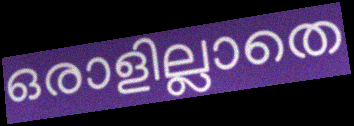
ഒരാളില്ലാതെ